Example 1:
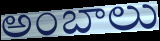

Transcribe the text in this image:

అంబాలు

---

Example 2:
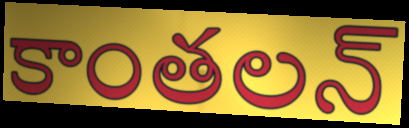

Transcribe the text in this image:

కాంతలన్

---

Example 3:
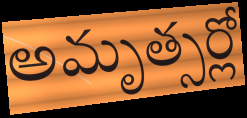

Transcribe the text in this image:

అమృత్సర్లో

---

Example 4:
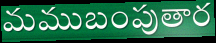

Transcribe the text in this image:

మముబంపుతార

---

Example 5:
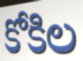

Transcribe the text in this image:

కోకిల